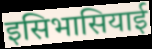
इसिभासियाई